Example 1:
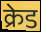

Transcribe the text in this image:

क्रेड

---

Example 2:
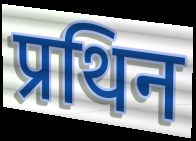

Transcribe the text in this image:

प्रथिन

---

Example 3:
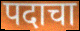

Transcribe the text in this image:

पदाचा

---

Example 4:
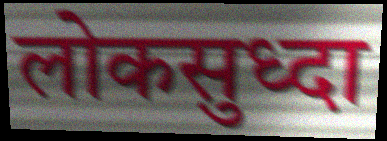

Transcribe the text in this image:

लोकसुध्दा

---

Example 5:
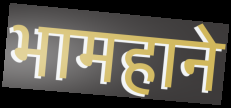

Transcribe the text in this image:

भामहाने